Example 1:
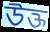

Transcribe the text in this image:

উক্ত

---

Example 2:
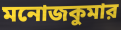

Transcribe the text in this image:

মনোজকুমার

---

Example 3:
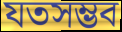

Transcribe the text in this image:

যতসম্ভব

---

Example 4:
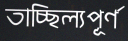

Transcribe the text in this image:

তাচ্ছিল্যপূর্ণ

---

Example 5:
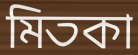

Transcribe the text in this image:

মিতকা